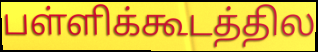
பள்ளிக்கூடத்தில